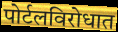
पोर्टलविरोधात